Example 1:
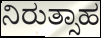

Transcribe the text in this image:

ನಿರುತ್ಸಾಹ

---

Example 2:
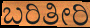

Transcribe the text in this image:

ಬರಿತೀರಿ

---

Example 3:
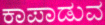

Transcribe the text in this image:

ಕಾಪಾಡುವ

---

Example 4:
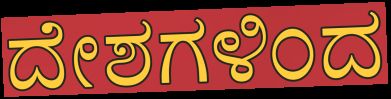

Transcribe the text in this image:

ದೇಶಗಳಿಂದ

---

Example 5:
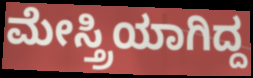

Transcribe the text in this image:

ಮೇಸ್ತ್ರಿಯಾಗಿದ್ದ